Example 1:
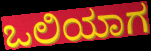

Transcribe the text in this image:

ಒಲಿಯಾಗ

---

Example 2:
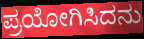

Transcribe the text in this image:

ಪ್ರಯೋಗಿಸಿದನು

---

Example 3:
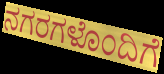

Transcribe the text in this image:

ನಗರಗಳೊಂದಿಗೆ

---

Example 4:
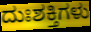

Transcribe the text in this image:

ದುಃಶಕ್ತಿಗಳು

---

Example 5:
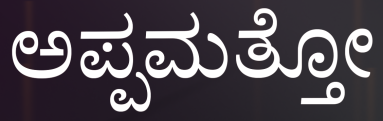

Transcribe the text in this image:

ಅಪ್ಪಮತ್ತೋ